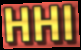
HHI